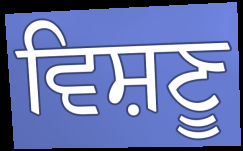
ਵਿਸ਼ਣੂ